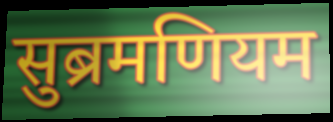
सुब्रमणियम